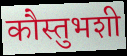
कौस्तुभशी